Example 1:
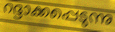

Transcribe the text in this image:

റദ്ദാക്കപ്പെടുന്നു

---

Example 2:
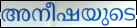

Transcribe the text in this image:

അനീഷയുടെ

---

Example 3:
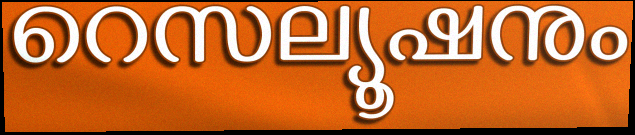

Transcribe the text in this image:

റെസല്യൂഷനും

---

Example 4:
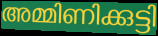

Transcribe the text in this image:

അമ്മിണിക്കുട്ടി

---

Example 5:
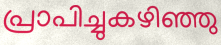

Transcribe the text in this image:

പ്രാപിച്ചുകഴിഞ്ഞു